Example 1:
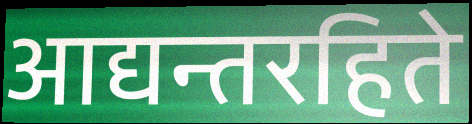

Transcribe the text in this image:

आद्यन्तरहिते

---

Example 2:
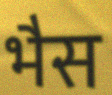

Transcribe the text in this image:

भैस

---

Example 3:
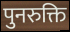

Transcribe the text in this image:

पुनरुक्ति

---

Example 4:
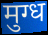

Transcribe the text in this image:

मुग्ध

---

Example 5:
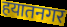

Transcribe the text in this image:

हयातनगर